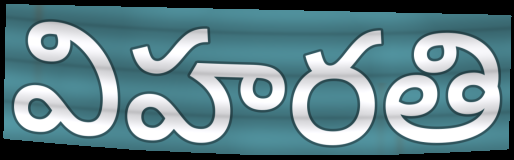
విహరతి